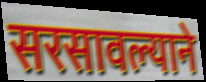
सरसावल्याने